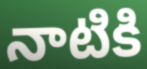
నాటికి